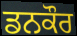
ਡਨਕੌਰ